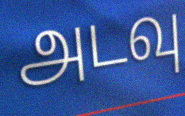
அடவு